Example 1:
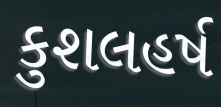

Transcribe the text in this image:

કુશલહર્ષ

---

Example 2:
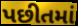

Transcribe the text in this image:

પછીતમાં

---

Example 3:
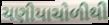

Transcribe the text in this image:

ચણીયાચોળીથી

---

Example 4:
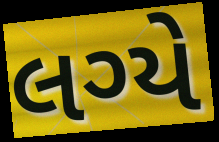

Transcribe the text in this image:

લગ્યે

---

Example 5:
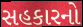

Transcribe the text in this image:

સહકારનો